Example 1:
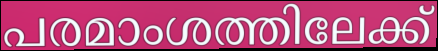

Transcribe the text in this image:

പരമാംശത്തിലേക്ക്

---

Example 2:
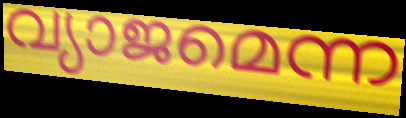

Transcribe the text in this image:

വ്യാജമെന്ന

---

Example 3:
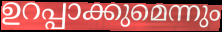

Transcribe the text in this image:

ഉറപ്പാക്കുമെന്നും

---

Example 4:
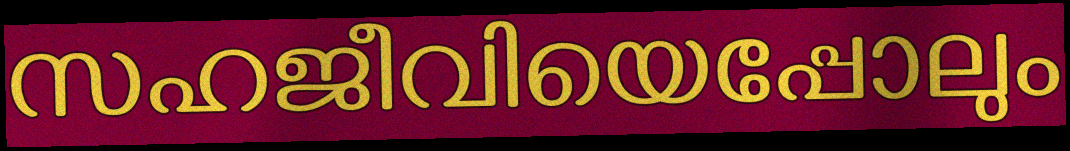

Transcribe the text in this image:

സഹജീവിയെപ്പോലും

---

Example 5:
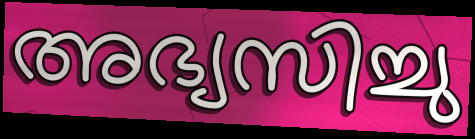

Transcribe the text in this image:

അഭ്യസിച്ചു